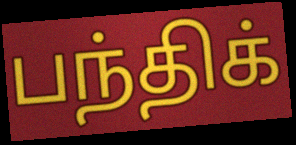
பந்திக்